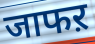
जाफऱ